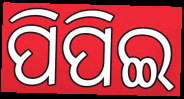
ପିପିଇ